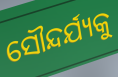
ସୌନ୍ଦର୍ଯ୍ଯକୁ